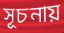
সূচনায়